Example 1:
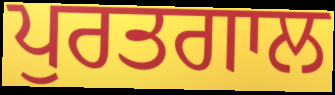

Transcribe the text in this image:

ਪੁਰਤਗਾਲ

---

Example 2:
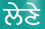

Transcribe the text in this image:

ਲੇਣੇ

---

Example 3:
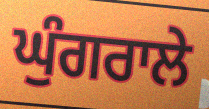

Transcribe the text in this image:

ਘੁੰਗਰਾਲੇ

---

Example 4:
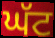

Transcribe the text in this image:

ਘੱਟ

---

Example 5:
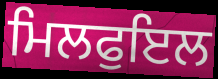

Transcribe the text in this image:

ਮਿਲਫੁਇਲ